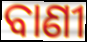
ବାଣୀ